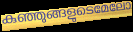
കുഞ്ഞുങ്ങളുടെമേലോ